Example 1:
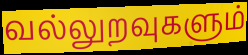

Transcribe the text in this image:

வல்லுறவுகளும்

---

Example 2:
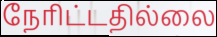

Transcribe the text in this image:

நேரிட்டதில்லை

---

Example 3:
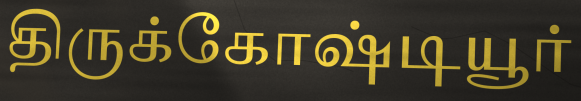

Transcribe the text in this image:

திருக்கோஷ்டியூர்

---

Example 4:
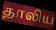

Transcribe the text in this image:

தாலிய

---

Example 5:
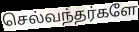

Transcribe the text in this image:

செல்வந்தர்களே